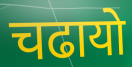
चढायो